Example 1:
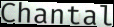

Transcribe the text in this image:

Chantal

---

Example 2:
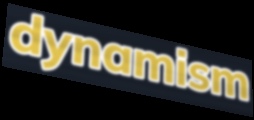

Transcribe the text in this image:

dynamism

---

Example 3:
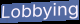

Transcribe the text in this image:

Lobbying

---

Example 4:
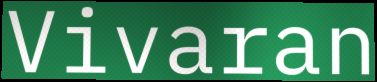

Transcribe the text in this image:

Vivaran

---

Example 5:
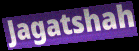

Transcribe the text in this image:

Jagatshah